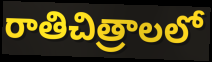
రాతిచిత్రాలలో